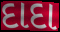
દાદા